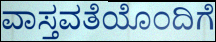
ವಾಸ್ತವತೆಯೊಂದಿಗೆ